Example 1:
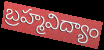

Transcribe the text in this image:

బ్రహ్మవిద్యాం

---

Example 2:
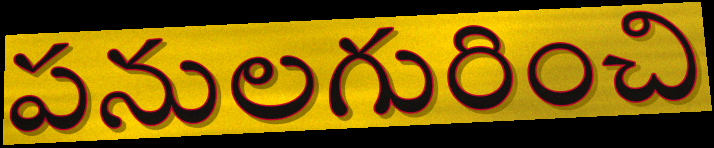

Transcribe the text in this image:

పనులగురించి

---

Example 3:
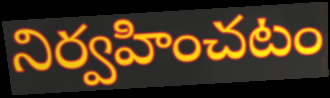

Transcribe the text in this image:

నిర్వహించటం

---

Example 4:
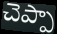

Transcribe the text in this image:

చెప్పా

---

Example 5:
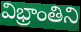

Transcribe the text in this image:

విభ్రాంతిని